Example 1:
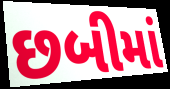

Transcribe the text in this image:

છબીમાં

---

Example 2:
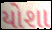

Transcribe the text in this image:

યોશા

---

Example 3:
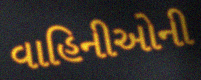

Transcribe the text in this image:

વાહિનીઓની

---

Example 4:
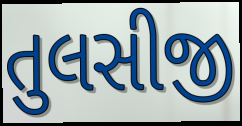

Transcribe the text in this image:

તુલસીજી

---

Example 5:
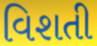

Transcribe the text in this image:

વિશતી